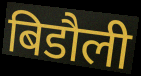
बिडौली